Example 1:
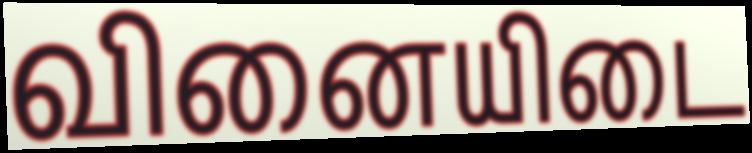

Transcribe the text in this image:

வினையிடை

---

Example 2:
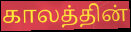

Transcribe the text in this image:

காலத்தின்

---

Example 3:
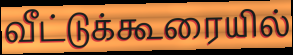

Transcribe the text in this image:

வீட்டுக்கூரையில்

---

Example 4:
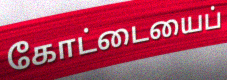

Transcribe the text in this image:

கோட்டையைப்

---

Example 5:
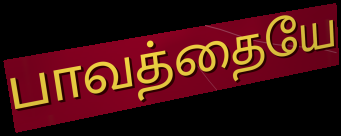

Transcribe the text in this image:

பாவத்தையே